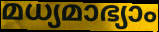
മധ്യമാഭ്യാം